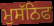
ਮੁਸੱਨਿਫ